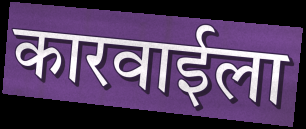
कारवाईला